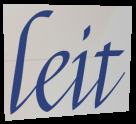
leit